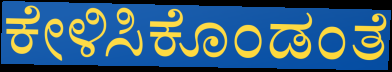
ಕೇಳಿಸಿಕೊಂಡಂತೆ